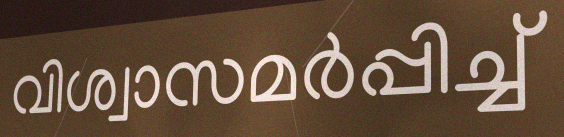
വിശ്വാസമർപ്പിച്ച്